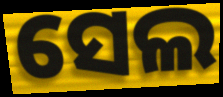
ସେଲ